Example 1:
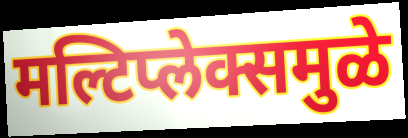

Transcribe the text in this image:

मल्टिप्लेक्समुळे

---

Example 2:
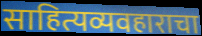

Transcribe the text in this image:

साहित्यव्यवहाराचा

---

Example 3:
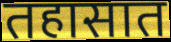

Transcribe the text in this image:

तहासात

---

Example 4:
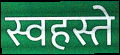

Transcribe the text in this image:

स्वहस्ते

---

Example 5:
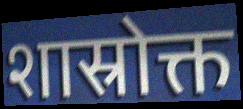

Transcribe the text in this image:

शास्रोक्त